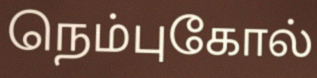
நெம்புகோல்